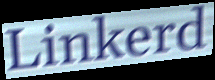
Linkerd